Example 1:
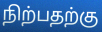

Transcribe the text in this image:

நிற்பதற்கு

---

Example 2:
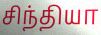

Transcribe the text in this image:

சிந்தியா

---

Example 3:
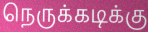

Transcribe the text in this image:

நெருக்கடிக்கு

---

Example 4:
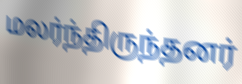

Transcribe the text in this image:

மலர்ந்திருந்தனர்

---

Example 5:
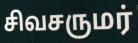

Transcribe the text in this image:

சிவசருமர்